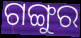
ଗଙ୍ଗୁର